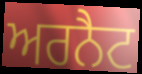
ਅਰਨੈਟ